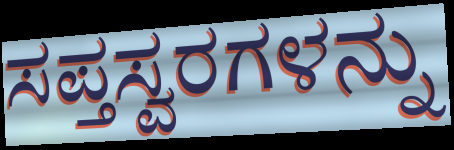
ಸಪ್ತಸ್ವರಗಳನ್ನು